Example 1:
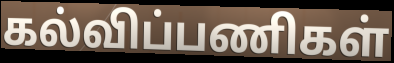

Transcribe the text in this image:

கல்விப்பணிகள்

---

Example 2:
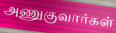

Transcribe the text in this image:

அணுகுவார்கள்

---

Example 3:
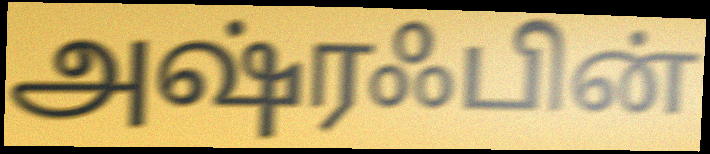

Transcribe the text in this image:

அஷ்ரஃபின்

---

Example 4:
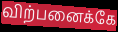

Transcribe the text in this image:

விற்பனைக்கே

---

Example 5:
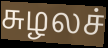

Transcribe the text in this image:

சுழலச்